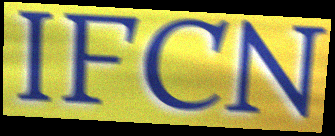
IFCN